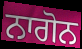
ਨਾਗੋਨ